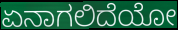
ಏನಾಗಲಿದೆಯೋ